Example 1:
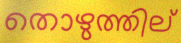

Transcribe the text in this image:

തൊഴുത്തില്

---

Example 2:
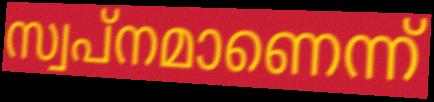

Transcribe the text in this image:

സ്വപ്നമാണെന്ന്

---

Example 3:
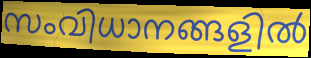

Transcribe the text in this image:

സംവിധാനങ്ങളിൽ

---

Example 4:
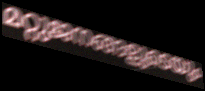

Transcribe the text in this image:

മറ്റുജനങ്ങളുടെയും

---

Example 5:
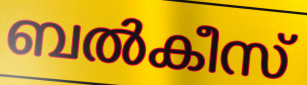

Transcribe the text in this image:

ബൽകീസ്